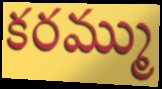
కరమ్ము